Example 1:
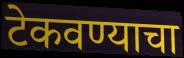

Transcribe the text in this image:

टेकवण्याचा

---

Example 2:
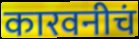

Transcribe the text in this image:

कारवनीचं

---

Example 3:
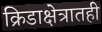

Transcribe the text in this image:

क्रिडाक्षेत्रातही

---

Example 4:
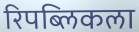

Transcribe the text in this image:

रिपब्लिकला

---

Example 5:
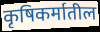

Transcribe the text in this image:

कृषिकर्मातील